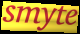
smyte